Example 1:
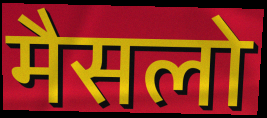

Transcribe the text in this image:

मैसलो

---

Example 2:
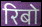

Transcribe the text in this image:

रिबो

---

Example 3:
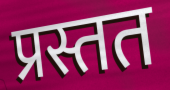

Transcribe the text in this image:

प्रस्तत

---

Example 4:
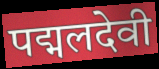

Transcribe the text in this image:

पद्मलदेवी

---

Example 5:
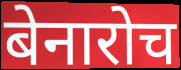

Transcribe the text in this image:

बेनारोच